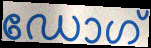
ഡോഗ്